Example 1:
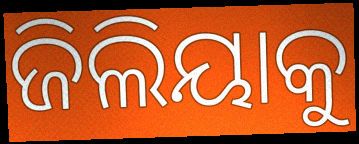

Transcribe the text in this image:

ଜିଲିୟାକୁ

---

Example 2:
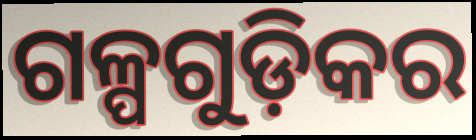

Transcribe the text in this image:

ଗଳ୍ପଗୁଡ଼ିକର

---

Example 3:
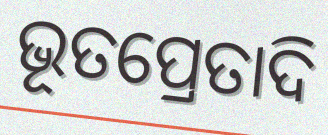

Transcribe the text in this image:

ଭୂତପ୍ରେତାଦି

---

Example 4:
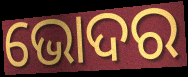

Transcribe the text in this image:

ଭୋଦର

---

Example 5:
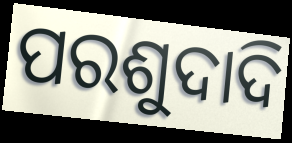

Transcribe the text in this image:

ପରଶୁଦାଦି